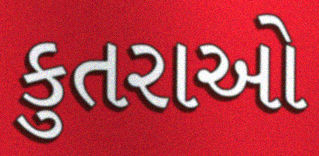
કુતરાઓ